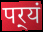
पर्यं